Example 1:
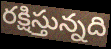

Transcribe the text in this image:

రక్షిస్తున్నది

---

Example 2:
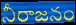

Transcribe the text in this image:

నీరాజనం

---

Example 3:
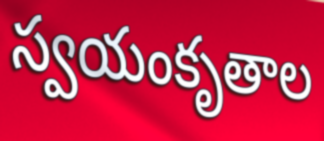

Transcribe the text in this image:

స్వయంకృతాల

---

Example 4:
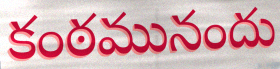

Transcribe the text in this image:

కంఠమునందు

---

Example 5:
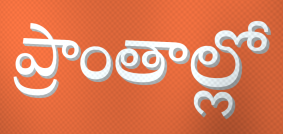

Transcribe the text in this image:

ప్రాంతాల్లో